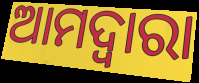
ଆମଦ୍ୱାରା